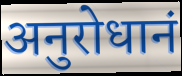
अनुरोधानं